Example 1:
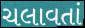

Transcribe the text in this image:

ચલાવતાં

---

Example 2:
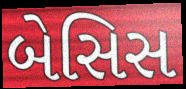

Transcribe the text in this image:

બેસિસ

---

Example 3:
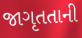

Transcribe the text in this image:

જાગૃતતાની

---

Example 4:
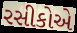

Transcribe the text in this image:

રસીકોએ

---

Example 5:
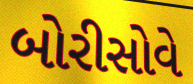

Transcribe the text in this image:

બોરીસોવે